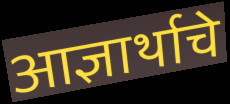
आज्ञार्थाचे